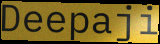
Deepaji